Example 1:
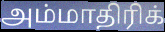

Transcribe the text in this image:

அம்மாதிரிக்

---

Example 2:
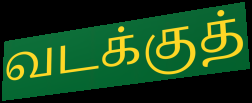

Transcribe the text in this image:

வடக்குத்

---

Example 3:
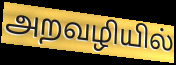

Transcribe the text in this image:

அறவழியில்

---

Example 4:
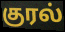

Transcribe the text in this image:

குரல்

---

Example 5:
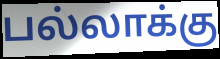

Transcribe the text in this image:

பல்லாக்கு